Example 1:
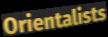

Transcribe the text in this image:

Orientalists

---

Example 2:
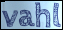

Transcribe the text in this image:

vahl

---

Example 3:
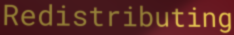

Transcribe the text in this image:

Redistributing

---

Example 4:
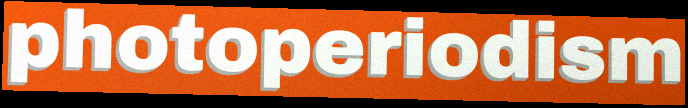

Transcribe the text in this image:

photoperiodism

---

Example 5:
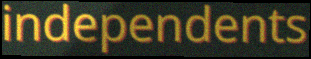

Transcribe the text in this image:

independents